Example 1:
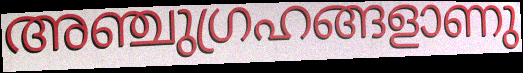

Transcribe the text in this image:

അഞ്ചുഗ്രഹങ്ങളാണു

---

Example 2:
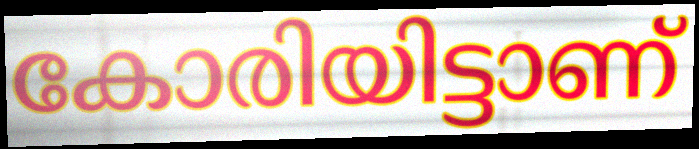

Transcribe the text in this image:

കോരിയിട്ടാണ്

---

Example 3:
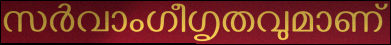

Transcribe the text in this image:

സർവാംഗീഗൃതവുമാണ്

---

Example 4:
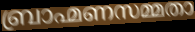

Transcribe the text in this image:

ബ്രാഹ്മണസമ്മതാ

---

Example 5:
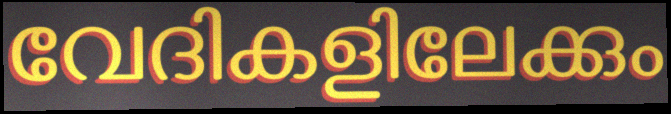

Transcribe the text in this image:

വേദികളിലേക്കും